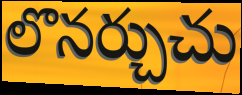
లొనర్చుచు